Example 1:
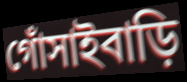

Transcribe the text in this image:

গোঁসাইবাড়ি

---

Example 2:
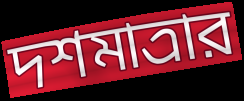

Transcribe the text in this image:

দশমাত্রার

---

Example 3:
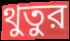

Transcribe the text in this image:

থুতুর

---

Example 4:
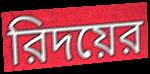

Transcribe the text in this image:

রিদয়ের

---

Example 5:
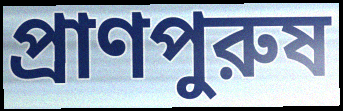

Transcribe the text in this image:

প্রাণপুরুষ